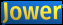
Jower